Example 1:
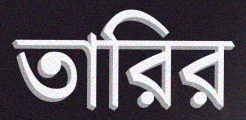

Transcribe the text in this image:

তারির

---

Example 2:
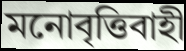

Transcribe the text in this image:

মনোবৃত্তিবাহী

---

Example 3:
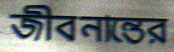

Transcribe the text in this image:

জীবনান্তের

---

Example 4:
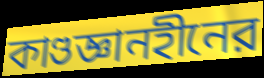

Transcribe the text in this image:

কাণ্ডজ্ঞানহীনের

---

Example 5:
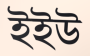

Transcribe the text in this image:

ইইউ